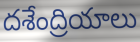
దశేంద్రియాలు